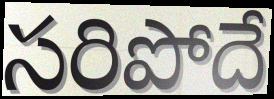
సరిపోదే